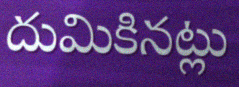
దుమికినట్లు